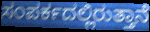
ಸಂಪರ್ಕದಲ್ಲಿರುತ್ತಾನೆ